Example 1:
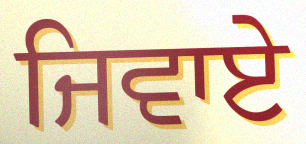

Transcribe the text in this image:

ਜਿਵਾਏ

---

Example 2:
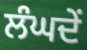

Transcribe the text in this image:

ਲੰਘਦੇਂ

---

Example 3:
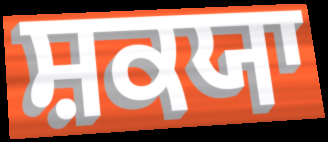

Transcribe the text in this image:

ਸ਼ਕਯਾ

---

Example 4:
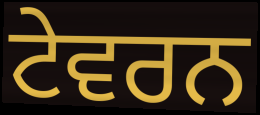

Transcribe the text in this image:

ਟੇਵਰਨ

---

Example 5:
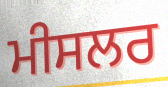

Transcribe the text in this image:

ਮੀਸਲਰ